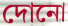
দোনো